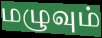
மழுவும்